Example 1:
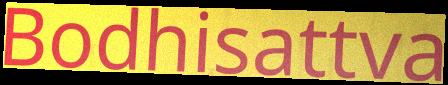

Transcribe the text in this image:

Bodhisattva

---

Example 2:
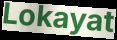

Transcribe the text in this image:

Lokayat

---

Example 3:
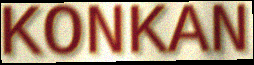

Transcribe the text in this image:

KONKAN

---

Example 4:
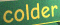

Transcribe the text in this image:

colder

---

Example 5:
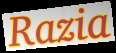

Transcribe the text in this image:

Razia